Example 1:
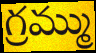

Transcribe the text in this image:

గ్రమ్ము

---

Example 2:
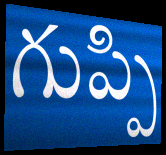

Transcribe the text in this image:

గుప్పి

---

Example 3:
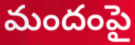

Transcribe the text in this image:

మందంపై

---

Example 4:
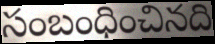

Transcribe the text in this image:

సంబంధించినది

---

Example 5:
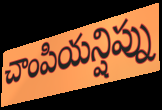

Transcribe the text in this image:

చాంపియన్షిప్ను